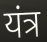
यंत्र